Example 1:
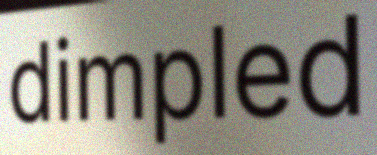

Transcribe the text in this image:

dimpled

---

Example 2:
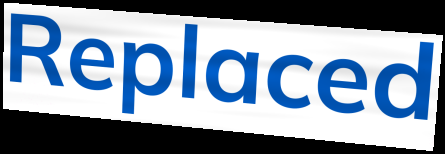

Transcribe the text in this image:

Replaced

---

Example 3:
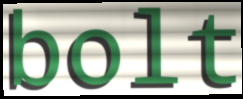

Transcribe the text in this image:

bolt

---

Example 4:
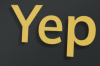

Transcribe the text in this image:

Yep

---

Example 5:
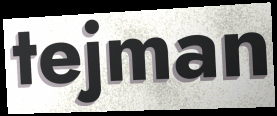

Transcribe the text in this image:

tejman